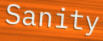
Sanity